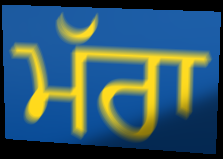
ਮੱਰਾ